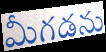
మీగడను